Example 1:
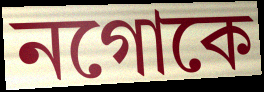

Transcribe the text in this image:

নগোকে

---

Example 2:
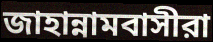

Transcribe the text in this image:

জাহান্নামবাসীরা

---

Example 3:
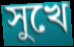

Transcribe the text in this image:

সুখে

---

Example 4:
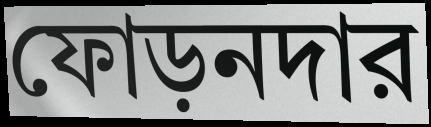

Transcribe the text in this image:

ফোড়নদার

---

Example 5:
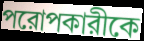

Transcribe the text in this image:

পরোপকারীকে